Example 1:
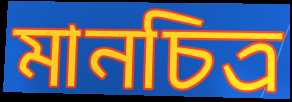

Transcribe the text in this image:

মানচিত্ৰ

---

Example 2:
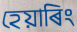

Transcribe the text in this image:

হেয়াৰিং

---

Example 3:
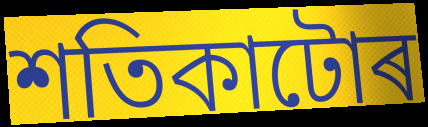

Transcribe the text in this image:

শতিকাটোৰ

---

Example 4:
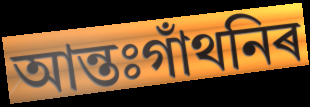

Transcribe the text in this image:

আন্তঃগাঁথনিৰ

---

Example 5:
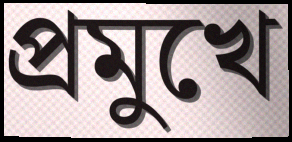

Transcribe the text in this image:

প্ৰমুখে